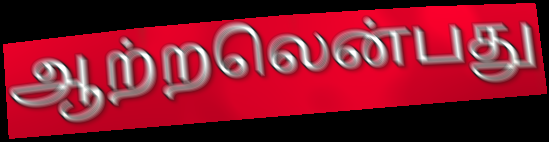
ஆற்றலென்பது